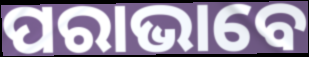
ପରାଭାବେ